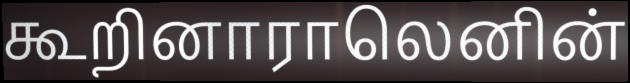
கூறினாராலெனின்